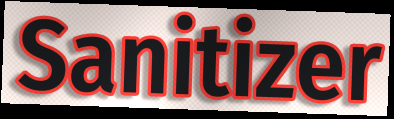
Sanitizer